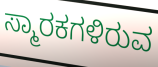
ಸ್ಮಾರಕಗಳಿರುವ